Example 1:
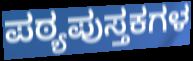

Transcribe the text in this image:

ಪಠ್ಯಪುಸ್ತಕಗಳ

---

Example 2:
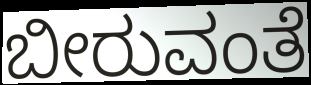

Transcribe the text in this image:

ಬೀರುವಂತೆ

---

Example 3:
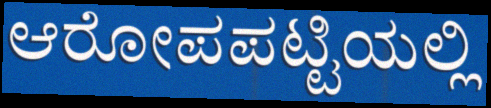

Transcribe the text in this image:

ಆರೋಪಪಟ್ಟಿಯಲ್ಲಿ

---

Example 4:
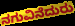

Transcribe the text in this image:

ನಗುವಿನೆದುರು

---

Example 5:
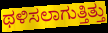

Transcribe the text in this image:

ಥಳಿಸಲಾಗುತ್ತಿತ್ತು